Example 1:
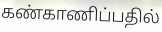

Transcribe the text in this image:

கண்காணிப்பதில்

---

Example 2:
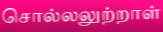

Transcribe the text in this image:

சொல்லலுற்றாள்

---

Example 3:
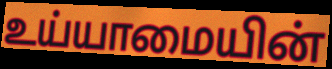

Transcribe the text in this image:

உய்யாமையின்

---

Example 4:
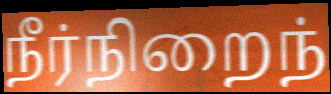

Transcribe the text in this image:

நீர்நிறைந்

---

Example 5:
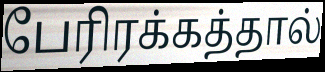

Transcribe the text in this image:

பேரிரக்கத்தால்